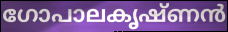
ഗോപാലകൃഷ്ണൻ